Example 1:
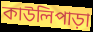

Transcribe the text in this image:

কাউলিপাড়া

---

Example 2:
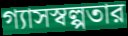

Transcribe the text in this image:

গ্যাসস্বল্পতার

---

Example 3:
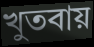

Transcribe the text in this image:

খুতবায়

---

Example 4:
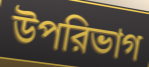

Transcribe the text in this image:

উপরিভাগ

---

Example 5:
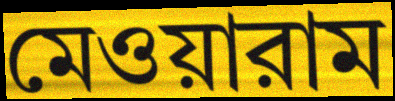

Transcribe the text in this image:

মেওয়ারাম